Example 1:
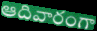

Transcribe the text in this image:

ఆదివారంగా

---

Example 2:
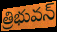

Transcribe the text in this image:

త్రిభువన్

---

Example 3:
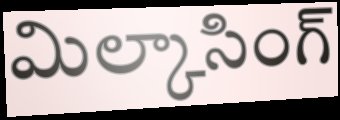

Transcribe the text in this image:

మిల్కాసింగ్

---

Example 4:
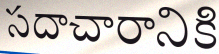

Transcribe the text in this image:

సదాచారానికి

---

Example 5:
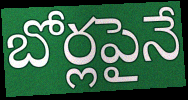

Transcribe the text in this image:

బోర్లపైనే